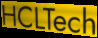
HCLTech